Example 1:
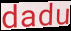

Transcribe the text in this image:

dadu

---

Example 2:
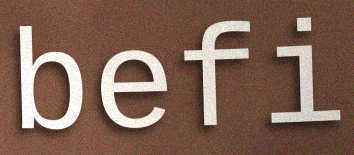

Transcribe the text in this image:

befi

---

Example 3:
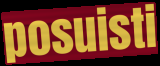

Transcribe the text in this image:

posuisti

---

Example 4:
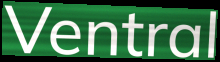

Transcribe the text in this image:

Ventral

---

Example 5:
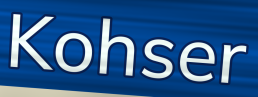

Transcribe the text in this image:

Kohser